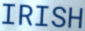
IRISH